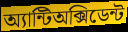
অ্যান্টিঅক্সিডেন্ট